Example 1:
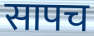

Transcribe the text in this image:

सापच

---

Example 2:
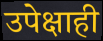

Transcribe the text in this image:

उपेक्षाही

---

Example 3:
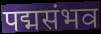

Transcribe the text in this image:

पद्मसंभव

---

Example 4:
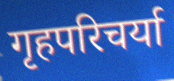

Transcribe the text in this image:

गृहपरिचर्या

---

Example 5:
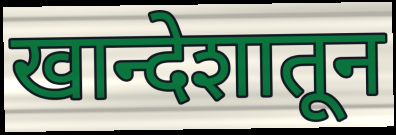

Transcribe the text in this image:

खान्देशातून